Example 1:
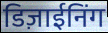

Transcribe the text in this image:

डिज़ाईनिंग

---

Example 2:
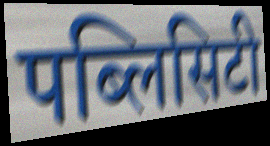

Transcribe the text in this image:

पब्लिसिटी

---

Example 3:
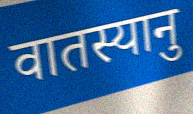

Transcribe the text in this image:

वातस्यानु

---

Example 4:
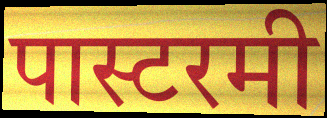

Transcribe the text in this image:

पास्टरमी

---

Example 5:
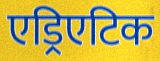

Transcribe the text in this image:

एड्रिएटिक